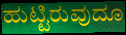
ಹುಟ್ಟಿರುವುದೂ